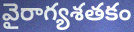
వైరాగ్యశతకం